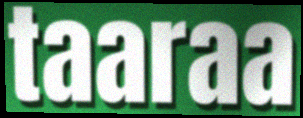
taaraa